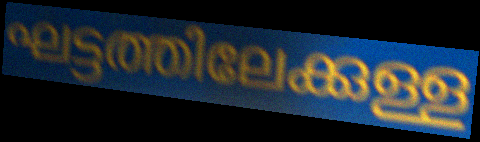
ഘട്ടത്തിലേക്കുള്ള